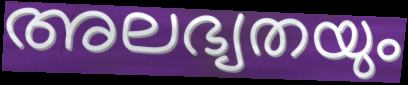
അലഭ്യതയും